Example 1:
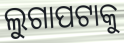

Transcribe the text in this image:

ଲୁଗାପଟାକୁ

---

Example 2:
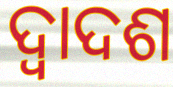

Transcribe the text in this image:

ଦ୍ଵାଦଶ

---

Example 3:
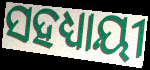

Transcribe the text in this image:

ସହଧ୍ୟାୟୀ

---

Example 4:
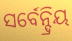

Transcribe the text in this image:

ସର୍ବେନ୍ଦ୍ରିୟ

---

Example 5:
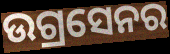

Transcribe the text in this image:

ଉଗ୍ରସେନର